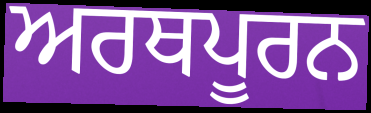
ਅਰਥਪੂਰਨ